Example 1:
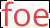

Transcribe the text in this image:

foe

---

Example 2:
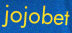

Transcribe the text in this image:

jojobet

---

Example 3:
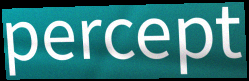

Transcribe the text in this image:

percept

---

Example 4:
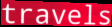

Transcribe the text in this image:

travels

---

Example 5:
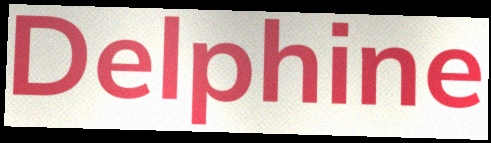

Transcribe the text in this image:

Delphine